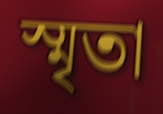
স্মৃতা